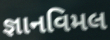
જ્ઞાનવિમલ